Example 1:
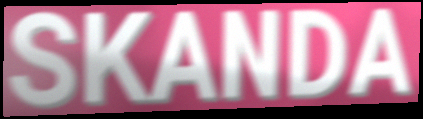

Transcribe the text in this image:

SKANDA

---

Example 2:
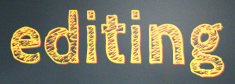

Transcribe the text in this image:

editing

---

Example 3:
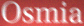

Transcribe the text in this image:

Osmia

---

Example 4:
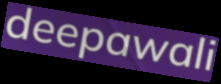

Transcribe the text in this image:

deepawali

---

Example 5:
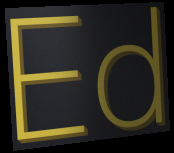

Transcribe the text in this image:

Ed